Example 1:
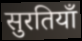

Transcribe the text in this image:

सुरतियाँ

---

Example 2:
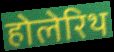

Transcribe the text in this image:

होलेरिथ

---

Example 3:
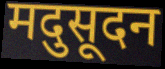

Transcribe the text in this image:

मदुसूदन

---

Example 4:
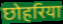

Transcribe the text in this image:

छोहरिया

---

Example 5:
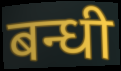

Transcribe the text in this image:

बन्धी